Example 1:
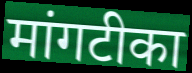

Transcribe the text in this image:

मांगटीका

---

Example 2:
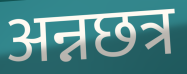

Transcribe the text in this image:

अन्नछत्र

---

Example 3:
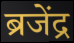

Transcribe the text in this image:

ब्रजेंद्र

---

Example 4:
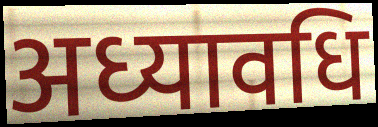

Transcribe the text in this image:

अध्यावधि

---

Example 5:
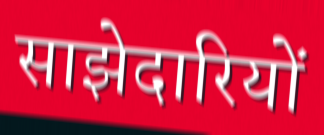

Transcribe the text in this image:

साझेदारियों